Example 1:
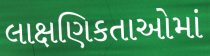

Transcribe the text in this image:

લાક્ષણિકતાઓમાં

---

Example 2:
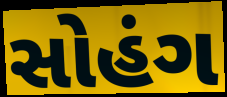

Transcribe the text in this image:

સોહંગ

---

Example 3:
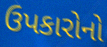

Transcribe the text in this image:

ઉપકારોનો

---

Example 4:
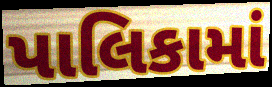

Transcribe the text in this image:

પાલિકામાં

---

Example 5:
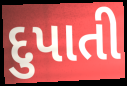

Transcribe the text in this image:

દુપાતી